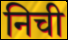
निची